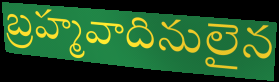
బ్రహ్మవాదినులైన